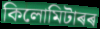
কিলোমিটাৰৰ